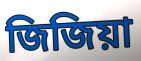
জিজিয়া